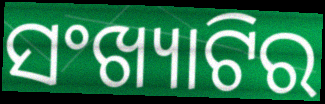
ସଂଖ୍ୟାଟିର